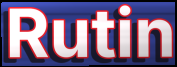
Rutin